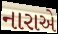
નારાએ